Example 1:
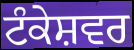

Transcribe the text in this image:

ਟੰਕੇਸ਼ਵਰ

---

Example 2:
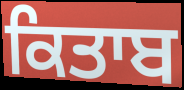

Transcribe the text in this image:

ਕਿਤਾਬ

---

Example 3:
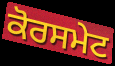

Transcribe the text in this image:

ਕੋਰਸਮੇਟ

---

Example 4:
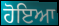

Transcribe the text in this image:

ਹੋਇਆ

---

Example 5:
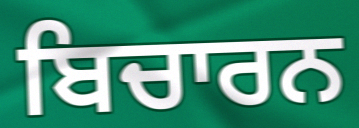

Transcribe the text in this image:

ਬਿਚਾਰਨ